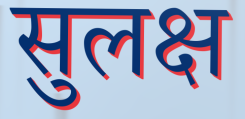
सुलक्ष